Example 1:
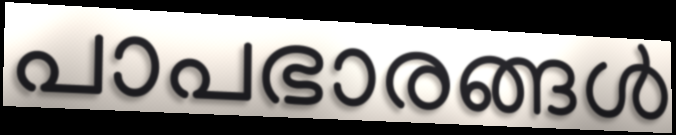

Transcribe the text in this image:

പാപഭാരങ്ങൾ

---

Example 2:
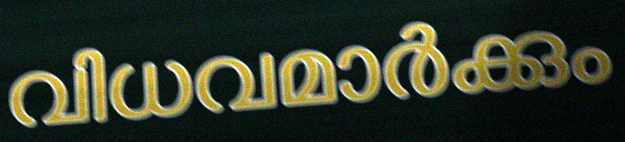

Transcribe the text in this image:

വിധവമാർക്കും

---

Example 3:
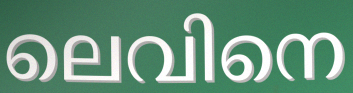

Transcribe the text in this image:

ലെവിനെ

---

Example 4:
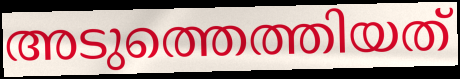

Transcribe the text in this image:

അടുത്തെത്തിയത്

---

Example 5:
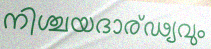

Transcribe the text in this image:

നിശ്ചയദാര്ഢ്യവും